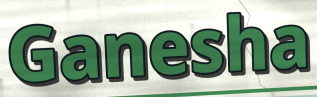
Ganesha